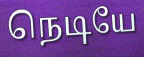
நெடியே